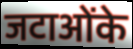
जटाओंके